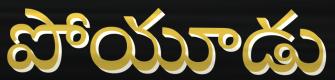
పోయూడు